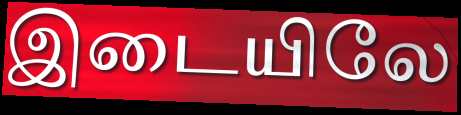
இடையிலே